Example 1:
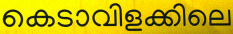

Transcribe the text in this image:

കെടാവിളക്കിലെ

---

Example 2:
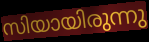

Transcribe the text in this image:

സിയായിരുന്നു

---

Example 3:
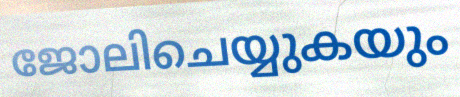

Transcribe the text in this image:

ജോലിചെയ്യുകയും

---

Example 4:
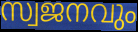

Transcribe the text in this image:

സ്വജനവും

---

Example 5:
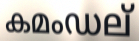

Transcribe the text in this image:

കമംഡല്